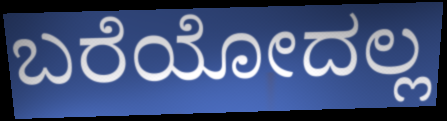
ಬರೆಯೋದಲ್ಲ